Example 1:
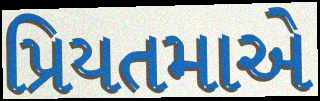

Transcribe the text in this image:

પ્રિયતમાએ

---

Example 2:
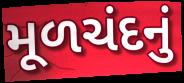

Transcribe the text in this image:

મૂળચંદનું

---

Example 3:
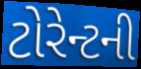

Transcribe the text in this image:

ટોરેન્ટની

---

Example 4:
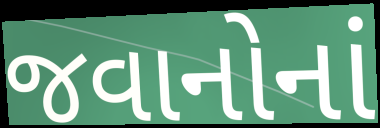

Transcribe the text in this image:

જવાનોનાં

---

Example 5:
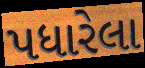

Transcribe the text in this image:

પધારેલા